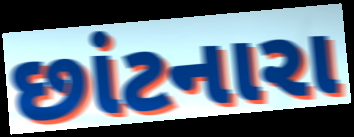
છાંટનારા